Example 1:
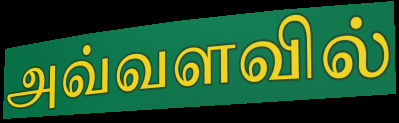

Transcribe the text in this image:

அவ்வளவில்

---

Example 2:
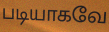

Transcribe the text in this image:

படியாகவே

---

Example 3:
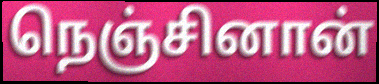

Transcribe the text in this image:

நெஞ்சினான்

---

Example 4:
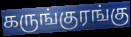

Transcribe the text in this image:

கருங்குரங்கு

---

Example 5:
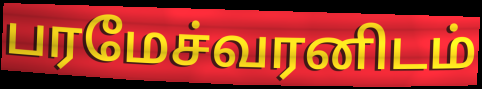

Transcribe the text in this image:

பரமேச்வரனிடம்